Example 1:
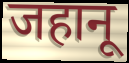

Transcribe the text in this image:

जहानू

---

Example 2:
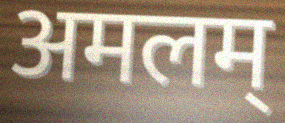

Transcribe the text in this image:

अमलम्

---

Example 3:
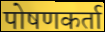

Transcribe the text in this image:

पोषणकर्ता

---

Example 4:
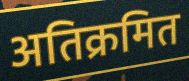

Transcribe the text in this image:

अतिक्रमित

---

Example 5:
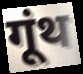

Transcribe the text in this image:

गूंथ